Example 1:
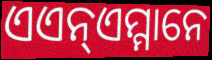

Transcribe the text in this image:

ଏଏନ୍ଏମ୍ମାନେ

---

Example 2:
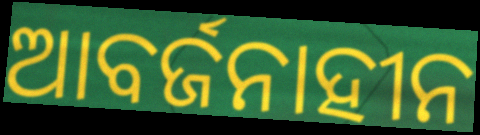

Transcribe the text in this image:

ଆବର୍ଜନାହୀନ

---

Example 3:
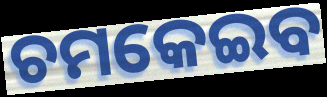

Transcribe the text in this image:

ଚମକେଇବ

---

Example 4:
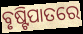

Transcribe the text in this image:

ବୃଷ୍ଟିପାତରେ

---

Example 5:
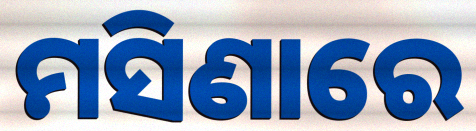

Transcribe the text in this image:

ମସିଣାରେ